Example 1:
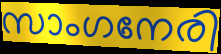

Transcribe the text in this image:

സാംഗനേരി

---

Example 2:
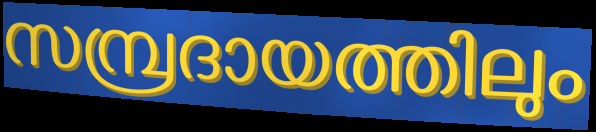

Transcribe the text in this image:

സമ്പ്രദായത്തിലും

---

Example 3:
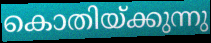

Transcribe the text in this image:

കൊതിയ്ക്കുന്നു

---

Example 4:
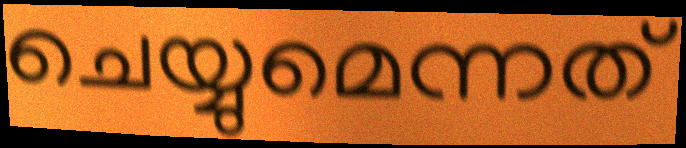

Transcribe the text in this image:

ചെയ്യുമെന്നത്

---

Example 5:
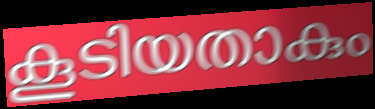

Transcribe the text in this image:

കൂടിയതാകും